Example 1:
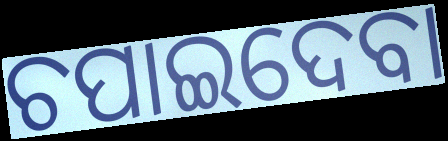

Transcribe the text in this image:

ଚପାଇଦେବା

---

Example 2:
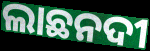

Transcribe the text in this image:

ଲାଛନଦୀ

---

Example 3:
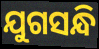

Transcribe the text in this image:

ଯୁଗସନ୍ଧି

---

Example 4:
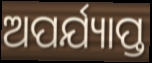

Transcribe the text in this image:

ଅପର୍ଯ୍ୟାପ୍ତ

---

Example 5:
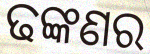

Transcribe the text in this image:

ଢଙ୍କଣର